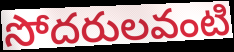
సోదరులవంటి